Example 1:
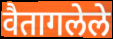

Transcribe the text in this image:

वैतागलेले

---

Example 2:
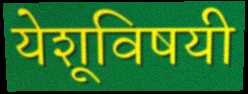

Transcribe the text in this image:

येशूविषयी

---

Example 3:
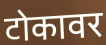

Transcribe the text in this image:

टोकावर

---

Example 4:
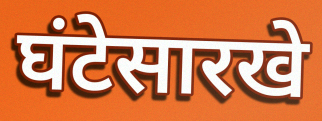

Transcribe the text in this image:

घंटेसारखे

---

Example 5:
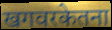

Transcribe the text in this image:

खगवरकेतना